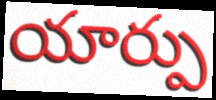
యార్పు